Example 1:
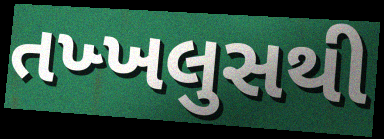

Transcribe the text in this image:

તખ્ખલુસથી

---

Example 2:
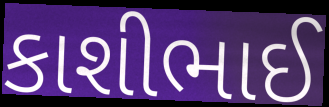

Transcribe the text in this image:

કાશીભાઈ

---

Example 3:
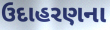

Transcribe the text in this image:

ઉદાહરણના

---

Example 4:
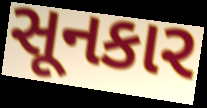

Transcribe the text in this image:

સૂનકાર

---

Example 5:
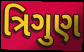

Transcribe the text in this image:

ત્રિગુણ